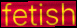
fetish